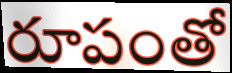
రూపంతో